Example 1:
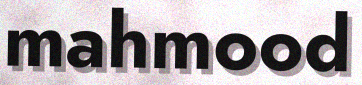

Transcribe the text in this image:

mahmood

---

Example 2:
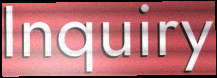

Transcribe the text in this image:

Inquiry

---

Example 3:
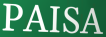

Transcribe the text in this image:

PAISA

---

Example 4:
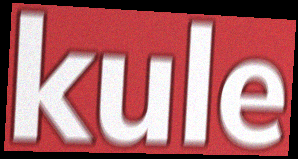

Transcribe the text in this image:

kule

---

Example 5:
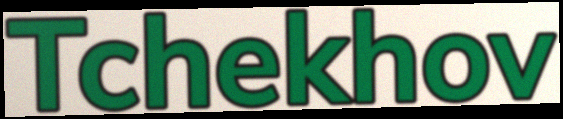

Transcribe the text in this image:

Tchekhov